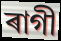
ৰাগী